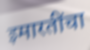
इमारतींचा